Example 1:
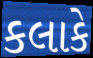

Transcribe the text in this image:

કલાકે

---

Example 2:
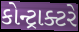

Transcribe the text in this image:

કોન્ટ્રાક્ટરે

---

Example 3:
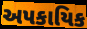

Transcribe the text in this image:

અપકાયિક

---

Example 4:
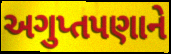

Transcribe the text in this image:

અગુપ્તપણાને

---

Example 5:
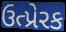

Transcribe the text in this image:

ઉત્પ્રેરક